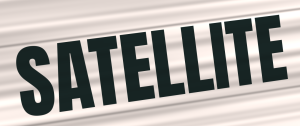
SATELLITE